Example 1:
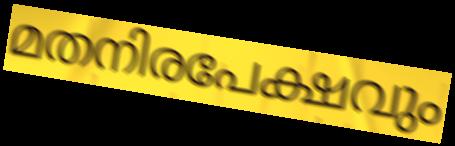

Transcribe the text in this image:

മതനിരപേക്ഷവും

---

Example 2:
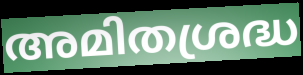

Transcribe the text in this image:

അമിതശ്രദ്ധ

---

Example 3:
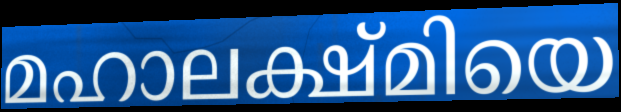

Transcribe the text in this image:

മഹാലക്ഷ്മിയെ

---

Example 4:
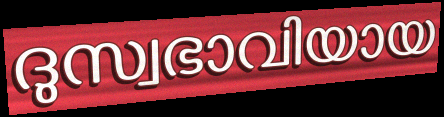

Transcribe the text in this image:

ദുസ്വഭാവിയായ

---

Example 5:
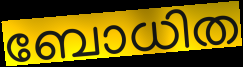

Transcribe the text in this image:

ബോധിത